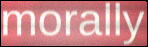
morally